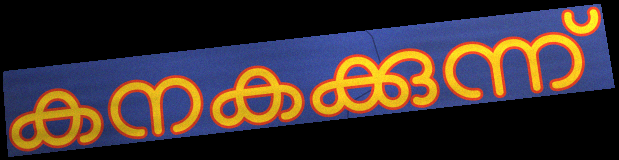
കനകക്കുന്ന്